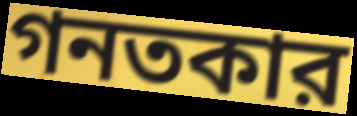
গনতকার